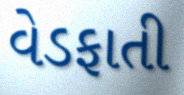
વેડફાતી